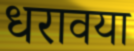
धरावया